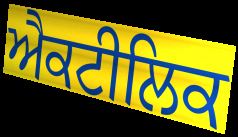
ਐਕਟੀਲਿਕ